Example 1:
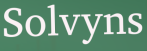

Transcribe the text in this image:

Solvyns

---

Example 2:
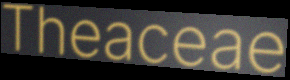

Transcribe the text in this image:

Theaceae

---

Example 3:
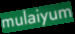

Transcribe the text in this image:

mulaiyum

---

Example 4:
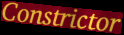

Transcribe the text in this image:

Constrictor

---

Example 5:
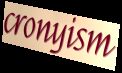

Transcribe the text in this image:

cronyism